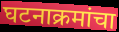
घटनाक्रमांचा